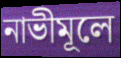
নাভীমূলে